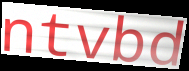
ntvbd